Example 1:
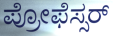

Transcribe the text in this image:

ಪ್ರೋಫೆಸ್ಸರ್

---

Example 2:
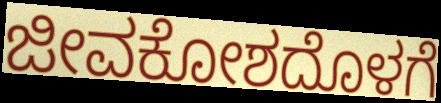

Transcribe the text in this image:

ಜೀವಕೋಶದೊಳಗೆ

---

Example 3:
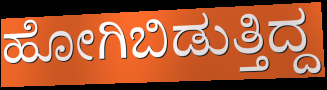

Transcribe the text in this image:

ಹೋಗಿಬಿಡುತ್ತಿದ್ದ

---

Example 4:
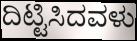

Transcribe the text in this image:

ದಿಟ್ಟಿಸಿದವಳು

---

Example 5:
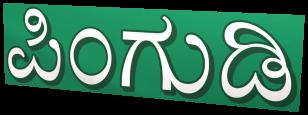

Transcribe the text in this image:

ಪಿಂಗುಡಿ